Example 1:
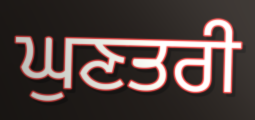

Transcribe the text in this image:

ਘੁਣਤਰੀ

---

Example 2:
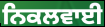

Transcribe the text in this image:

ਨਿਕਲਵਾਈ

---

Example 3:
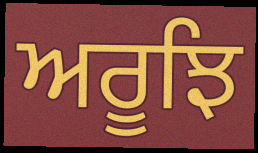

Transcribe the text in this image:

ਅਰੂਝਿ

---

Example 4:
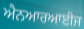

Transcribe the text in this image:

ਐਨਆਰਆਈਜ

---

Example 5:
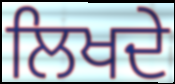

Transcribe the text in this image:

ਲਿਖਦੇ